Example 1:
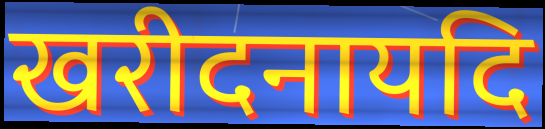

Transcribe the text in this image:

खरीदनायदि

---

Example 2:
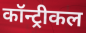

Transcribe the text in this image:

कॉन्ट्रीकल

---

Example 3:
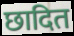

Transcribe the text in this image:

छादित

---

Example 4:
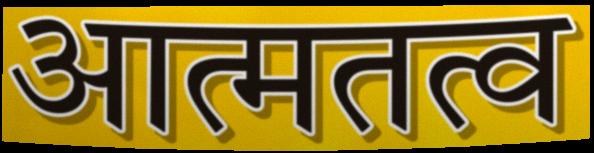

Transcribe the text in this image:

आत्मतत्व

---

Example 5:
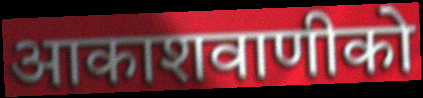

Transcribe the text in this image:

आकाशवाणीको